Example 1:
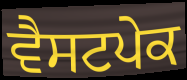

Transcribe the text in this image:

ਵੈਸਟਪੇਕ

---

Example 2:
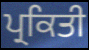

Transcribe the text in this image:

ਪ੍ਰਕਿਤੀ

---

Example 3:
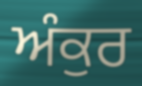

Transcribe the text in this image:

ਅੰਕੁਰ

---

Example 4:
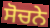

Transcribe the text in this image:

ਸੋਚਨੇ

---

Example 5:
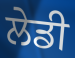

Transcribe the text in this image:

ਲੇਡੀ